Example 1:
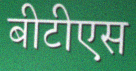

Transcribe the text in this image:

बीटीएस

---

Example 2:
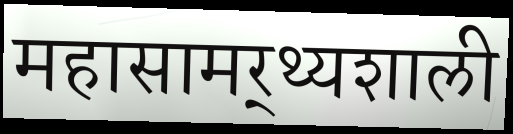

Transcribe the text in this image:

महासामर्थ्यशाली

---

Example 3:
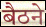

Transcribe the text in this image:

बैठने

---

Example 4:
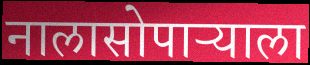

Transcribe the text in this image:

नालासोपाऱ्याला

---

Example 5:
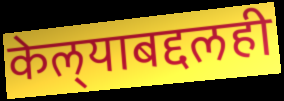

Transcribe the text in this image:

केल्याबद्दलही